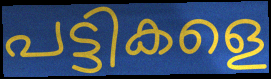
പട്ടികളെ